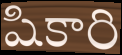
షికారి